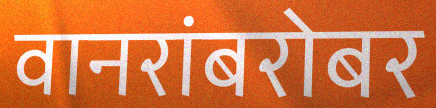
वानरांबरोबर